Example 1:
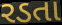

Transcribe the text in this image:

રડતા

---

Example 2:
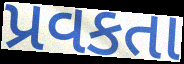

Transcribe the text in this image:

પ્રવકતા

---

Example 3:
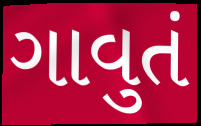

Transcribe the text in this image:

ગાવુતં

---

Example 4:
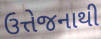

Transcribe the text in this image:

ઉત્તેજનાથી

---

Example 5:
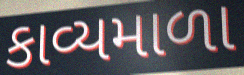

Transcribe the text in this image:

કાવ્યમાળા